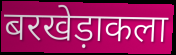
बरखेड़ाकला